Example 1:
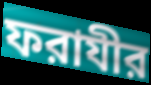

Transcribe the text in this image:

ফরাযীর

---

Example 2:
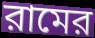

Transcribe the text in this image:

রামের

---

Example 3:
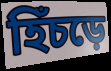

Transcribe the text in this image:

হিঁচড়ে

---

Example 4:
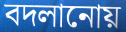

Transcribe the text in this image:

বদলানোয়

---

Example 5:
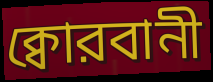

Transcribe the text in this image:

ক্বোরবানী